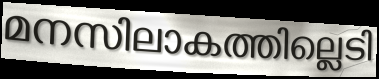
മനസിലാകത്തില്ലെടി